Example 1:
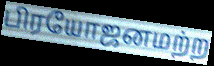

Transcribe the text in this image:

பிரயோஜனமற்ற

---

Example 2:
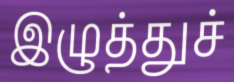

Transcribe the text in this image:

இழுத்துச்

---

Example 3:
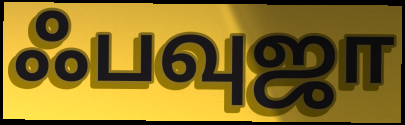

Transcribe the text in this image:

ஃபவுஜா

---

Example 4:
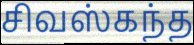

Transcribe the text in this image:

சிவஸ்கந்த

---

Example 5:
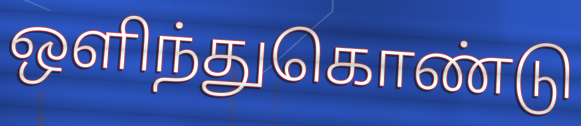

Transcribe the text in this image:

ஒளிந்துகொண்டு